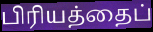
பிரியத்தைப்